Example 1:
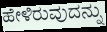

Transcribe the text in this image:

ಹೇಳಿರುವುದನ್ನು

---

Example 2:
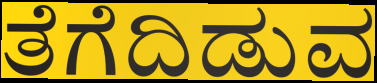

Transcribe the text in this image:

ತೆಗೆದಿಡುವ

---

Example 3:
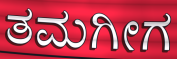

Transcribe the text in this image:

ತಮಗೀಗ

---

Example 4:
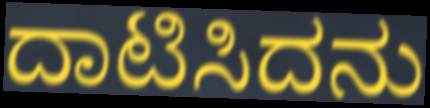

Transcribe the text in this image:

ದಾಟಿಸಿದನು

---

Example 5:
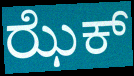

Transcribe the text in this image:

ಝೆಕ್